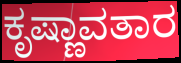
ಕೃಷ್ಣಾವತಾರ